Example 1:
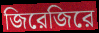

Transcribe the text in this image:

জিরেজিরে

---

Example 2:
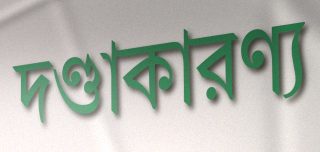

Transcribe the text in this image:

দণ্ডাকারণ্য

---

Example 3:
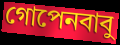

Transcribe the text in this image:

গোপেনবাবু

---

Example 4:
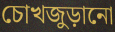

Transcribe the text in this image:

চোখজুড়ানো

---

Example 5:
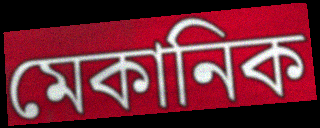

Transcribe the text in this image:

মেকানিক